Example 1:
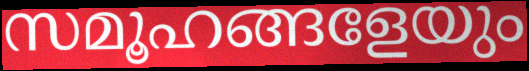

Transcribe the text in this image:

സമൂഹങ്ങളേയും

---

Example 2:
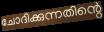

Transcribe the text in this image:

ചോദിക്കുന്നതിന്റെ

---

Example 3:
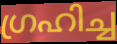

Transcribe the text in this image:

ഗ്രഹിച്ച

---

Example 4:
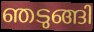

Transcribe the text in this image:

ഞടുങ്ങി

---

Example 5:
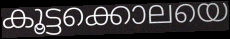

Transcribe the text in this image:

കൂട്ടക്കൊലയെ